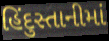
હિંદુસ્તાનીમાં